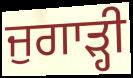
ਜੁਗਾੜ੍ਹੀ